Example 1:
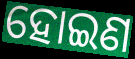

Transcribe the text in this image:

ହୋଇଣ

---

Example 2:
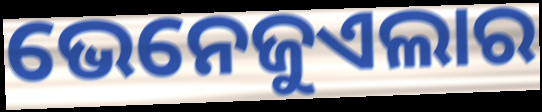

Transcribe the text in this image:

ଭେନେଜୁଏଲାର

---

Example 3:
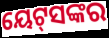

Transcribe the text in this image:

ୟେଟ୍‌ସଙ୍କର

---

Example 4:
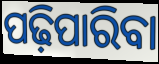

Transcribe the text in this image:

ପଢ଼ିପାରିବା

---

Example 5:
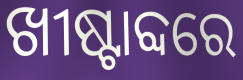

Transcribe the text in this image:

ଖୀଷ୍ଟାବ୍ଦରେ